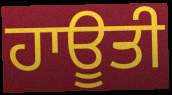
ਹਾਊਤੀ